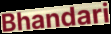
Bhandari